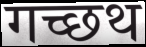
गच्छथ